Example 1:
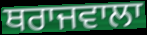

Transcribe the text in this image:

ਥਰਾਜਵਾਲਾ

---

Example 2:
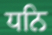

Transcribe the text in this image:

ਧਨਿ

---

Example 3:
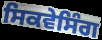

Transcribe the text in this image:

ਸਿਕਵੇਸਿੰਗ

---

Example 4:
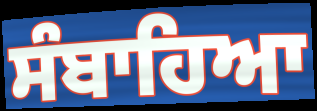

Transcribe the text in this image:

ਸੰਬਾਹਿਆ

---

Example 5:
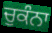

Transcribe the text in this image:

ਚੁਕੰਨਾ